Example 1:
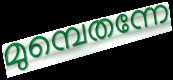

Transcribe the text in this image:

മുമ്പെതന്നേ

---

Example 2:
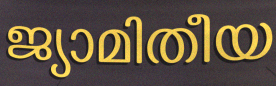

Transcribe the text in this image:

ജ്യാമിതീയ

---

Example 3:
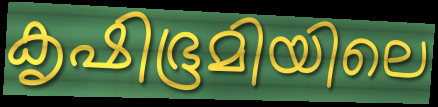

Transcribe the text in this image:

കൃഷിഭൂമിയിലെ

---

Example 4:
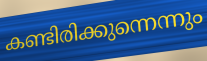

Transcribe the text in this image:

കണ്ടിരിക്കുന്നെന്നും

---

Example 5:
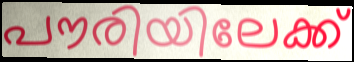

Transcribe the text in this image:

പൗരിയിലേക്ക്